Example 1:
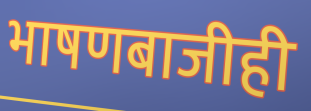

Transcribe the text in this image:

भाषणबाजीही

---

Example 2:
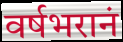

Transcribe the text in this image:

वर्षभरानं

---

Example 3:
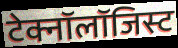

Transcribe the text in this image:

टेक्नॉलॉजिस्ट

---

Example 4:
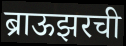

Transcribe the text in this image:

ब्राऊझरची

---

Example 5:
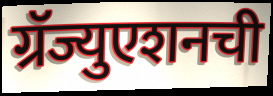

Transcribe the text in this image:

ग्रॅज्युएशनची